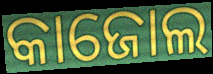
କାଜୋଲ